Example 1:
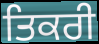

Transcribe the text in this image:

ਤਿਕਰੀ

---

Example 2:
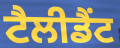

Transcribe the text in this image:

ਟੈਲੀਡੈਂਟ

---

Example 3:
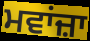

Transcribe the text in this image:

ਮਵਾਂਜ਼ਾ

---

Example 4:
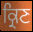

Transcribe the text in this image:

ਕ੍ਰਿਣ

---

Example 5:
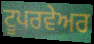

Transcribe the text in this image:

ਟੂਪਰਵੇਅਰ